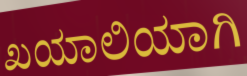
ಖಯಾಲಿಯಾಗಿ